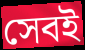
সেবই